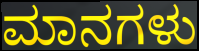
ಮಾನಗಳು